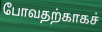
போவதற்காகச்